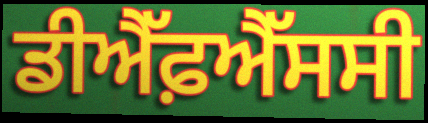
ਡੀਐੱਫ਼ਐੱਸਸੀ